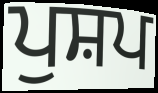
ਪੁਸ਼ਪ